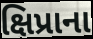
ક્ષિપ્રાના